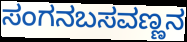
ಸಂಗನಬಸವಣ್ಣನ